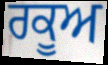
ਰਕੂਅ